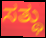
ಸತ್ಥು